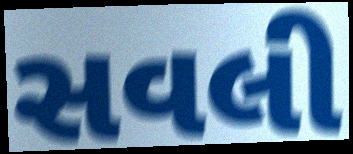
સવલી